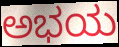
ಅಭಯ